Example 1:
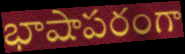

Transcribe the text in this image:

భాషాపరంగా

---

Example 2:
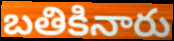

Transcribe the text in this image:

బతికినారు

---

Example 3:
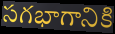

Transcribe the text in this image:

సగభాగానికి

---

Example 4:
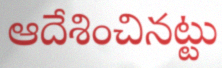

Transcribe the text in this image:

ఆదేశించినట్టు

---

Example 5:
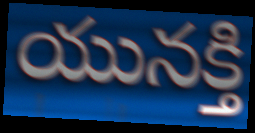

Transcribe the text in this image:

యునక్తి